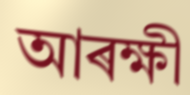
আৰক্ষী